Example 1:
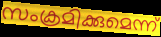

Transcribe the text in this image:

സംക്രമിക്കുമെന്ന്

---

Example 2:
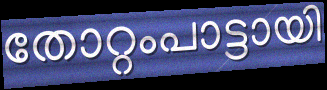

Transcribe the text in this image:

തോറ്റംപാട്ടായി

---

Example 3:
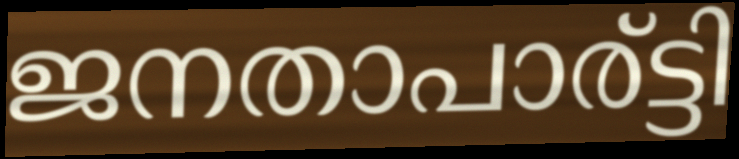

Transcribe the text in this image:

ജനതാപാര്ട്ടി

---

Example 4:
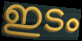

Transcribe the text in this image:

ഇടം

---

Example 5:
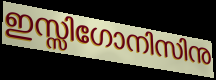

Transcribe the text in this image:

ഇസ്സിഗോനിസിനു